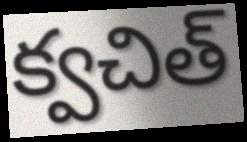
క్వచిత్